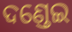
ଦଣ୍ଡେଇ